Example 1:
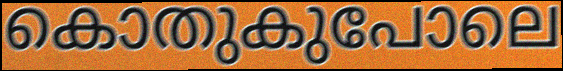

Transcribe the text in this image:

കൊതുകുപോലെ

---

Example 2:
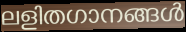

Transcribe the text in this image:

ലളിതഗാനങ്ങൾ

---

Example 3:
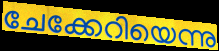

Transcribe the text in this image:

ചേക്കേറിയെന്നു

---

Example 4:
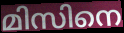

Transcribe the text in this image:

മിസിനെ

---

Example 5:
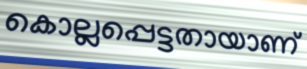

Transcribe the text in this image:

കൊല്ലപ്പെട്ടതായാണ്